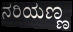
ನರಿಯಣ್ಣ